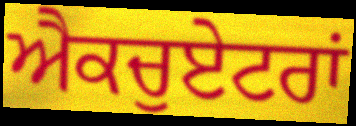
ਐਕਚੁਏਟਰਾਂ